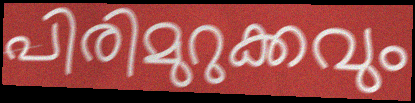
പിരിമുറുക്കവും